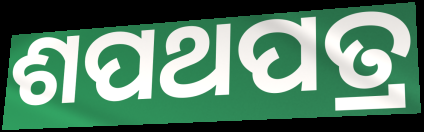
ଶପଥପତ୍ର